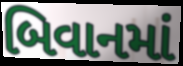
બિવાનમાં